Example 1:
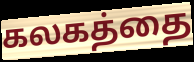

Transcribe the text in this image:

கலகத்தை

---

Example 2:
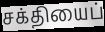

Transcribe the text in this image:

சக்தியைப்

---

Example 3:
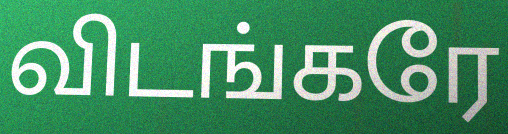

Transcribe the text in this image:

விடங்கரே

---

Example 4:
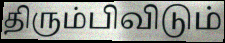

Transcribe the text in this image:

திரும்பிவிடும்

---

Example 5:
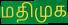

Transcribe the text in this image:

மதிமுக